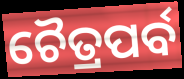
ଚୈତ୍ରପର୍ବ